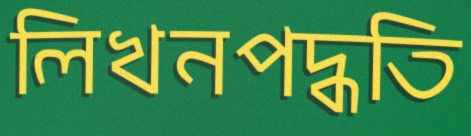
লিখনপদ্ধতি